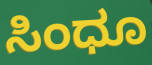
ಸಿಂಧೂ